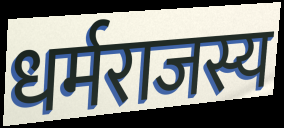
धर्मराजस्य